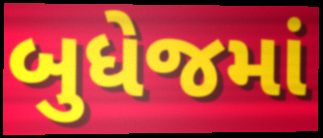
બુધેજમાં